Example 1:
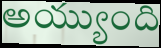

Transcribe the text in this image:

అయ్యుంది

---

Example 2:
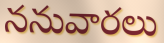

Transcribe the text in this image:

ననువారలు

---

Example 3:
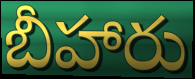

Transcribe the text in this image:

బీహారు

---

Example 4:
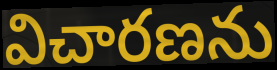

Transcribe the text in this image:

విచారణను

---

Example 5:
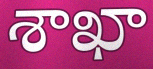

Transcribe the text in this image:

శాఖా